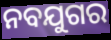
ନବଯୁଗର